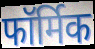
फॉर्मिक